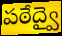
పఠేద్వై